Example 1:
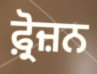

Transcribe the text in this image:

ਫ਼੍ਰੋਜ਼ਨ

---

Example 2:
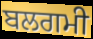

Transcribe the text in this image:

ਬਲਗਮੀ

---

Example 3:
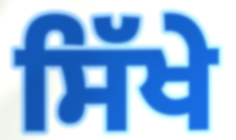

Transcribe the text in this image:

ਸਿੱਖੇ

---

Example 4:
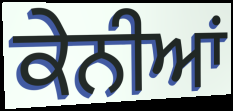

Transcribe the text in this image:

ਕੇਨੀਆਂ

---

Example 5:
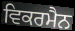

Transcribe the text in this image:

ਵਿਕਰਮੈਨ